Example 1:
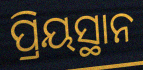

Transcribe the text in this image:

ପ୍ରିୟସ୍ଥାନ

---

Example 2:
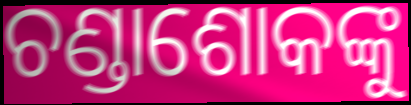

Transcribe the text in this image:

ଚଣ୍ଡାଶୋକଙ୍କୁ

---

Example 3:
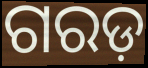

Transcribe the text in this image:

ଗରଡ଼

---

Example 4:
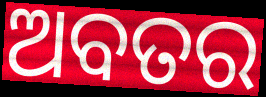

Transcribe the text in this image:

ଅବତର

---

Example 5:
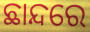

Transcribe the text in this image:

ଛାନ୍ଦରେ